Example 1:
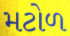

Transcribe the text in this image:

મટોળ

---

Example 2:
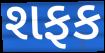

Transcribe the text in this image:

શફક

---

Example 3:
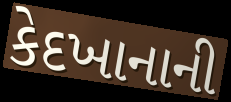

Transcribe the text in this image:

કેદખાનાની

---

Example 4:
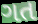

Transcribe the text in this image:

ગત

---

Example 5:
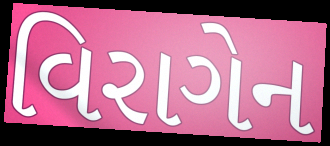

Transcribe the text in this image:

વિરાગેન